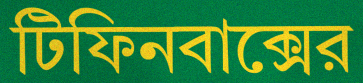
টিফিনবাক্সের